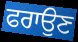
ਫਰਾਉਣ